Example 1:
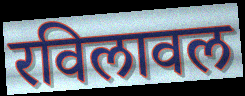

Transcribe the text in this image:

रविलावल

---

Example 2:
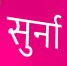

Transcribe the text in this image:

सुर्ना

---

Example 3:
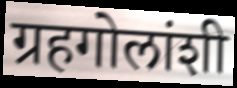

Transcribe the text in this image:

ग्रहगोलांशी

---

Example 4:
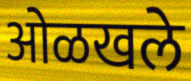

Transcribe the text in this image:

ओळखले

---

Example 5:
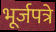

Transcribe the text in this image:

भूर्जपत्रे